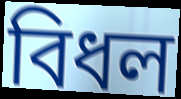
বিধল